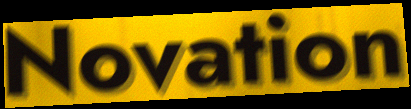
Novation